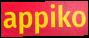
appiko